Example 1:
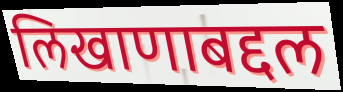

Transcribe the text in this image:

लिखाणाबद्दल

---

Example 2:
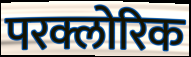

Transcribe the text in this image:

परक्लोरिक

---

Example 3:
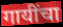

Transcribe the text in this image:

गायींचा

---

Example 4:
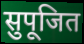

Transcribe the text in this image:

सुपूजित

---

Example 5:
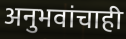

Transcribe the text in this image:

अनुभवांचाही